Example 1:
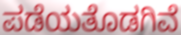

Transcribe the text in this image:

ಪಡೆಯತೊಡಗಿವೆ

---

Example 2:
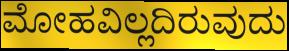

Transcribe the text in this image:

ಮೋಹವಿಲ್ಲದಿರುವುದು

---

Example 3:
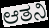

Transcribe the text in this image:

ಆತನಿ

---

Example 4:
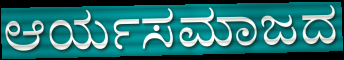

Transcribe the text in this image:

ಆರ್ಯಸಮಾಜದ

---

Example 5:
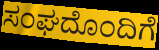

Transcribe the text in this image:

ಸಂಘದೊಂದಿಗೆ